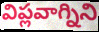
విప్లవాగ్నిని